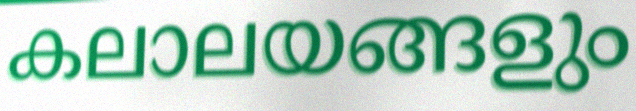
കലാലയങ്ങളും